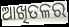
ଆଖିତଳର